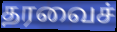
தரவைச்